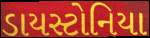
ડાયસ્ટોનિયા